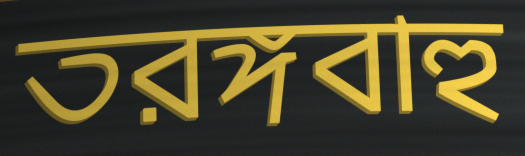
তরঙ্গবাহু